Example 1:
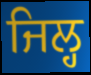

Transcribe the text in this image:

ਜਿਲ੍ਹ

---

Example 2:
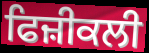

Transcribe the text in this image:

ਫਿਜ਼ੀਕਲੀ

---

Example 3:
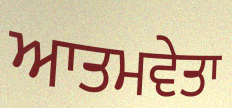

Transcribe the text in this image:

ਆਤਮਵੇਤਾ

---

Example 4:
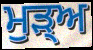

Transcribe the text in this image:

ਮੁਡ਼੍ਅ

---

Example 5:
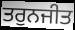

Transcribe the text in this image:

ਤਰੁਨਜੀਤ